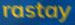
rastay